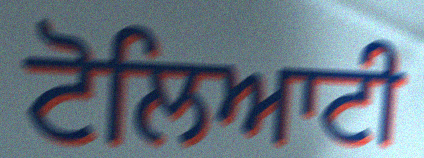
ਟੋਲਿਆਟੀ